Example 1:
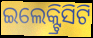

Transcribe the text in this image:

ଇଲେକ୍ଟ୍ରିସିଟି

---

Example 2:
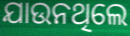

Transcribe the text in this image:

ଯାଉନଥିଲେ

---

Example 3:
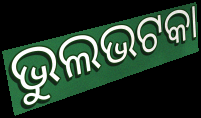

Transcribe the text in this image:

ଭୁଲଭଟକା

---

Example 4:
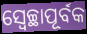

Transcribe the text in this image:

ସ୍ଵେଚ୍ଛାପୂର୍ବକ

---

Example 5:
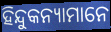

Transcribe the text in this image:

ହିନ୍ଦୁକନ୍ୟାମାନେ